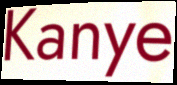
Kanye